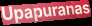
Upapuranas